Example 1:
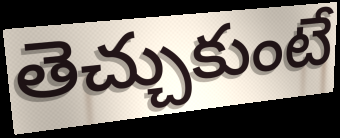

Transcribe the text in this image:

తెచ్చుకుంటే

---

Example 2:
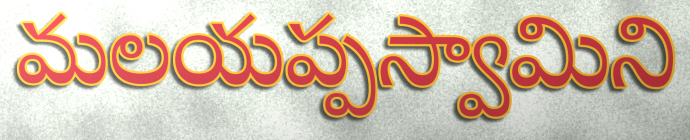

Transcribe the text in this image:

మలయప్పస్వామిని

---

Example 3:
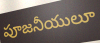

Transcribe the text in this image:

పూజనీయులూ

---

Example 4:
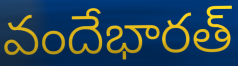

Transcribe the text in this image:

వందేభారత్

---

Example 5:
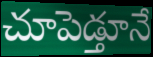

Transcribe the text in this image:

చూపెడ్తూనే